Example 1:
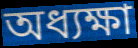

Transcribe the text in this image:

অধ্যক্ষা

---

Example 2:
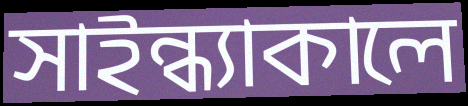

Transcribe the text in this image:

সাইন্ধ্যাকালে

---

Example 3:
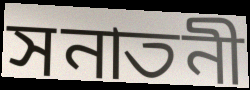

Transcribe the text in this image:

সনাতনী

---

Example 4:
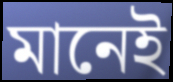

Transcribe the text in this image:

মানেই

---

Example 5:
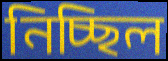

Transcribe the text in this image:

নিচ্ছিল